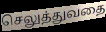
செலுத்துவதை